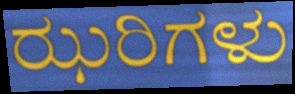
ಝರಿಗಳು